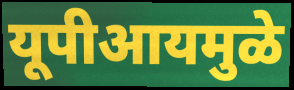
यूपीआयमुळे